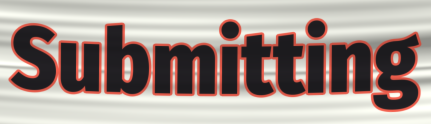
Submitting